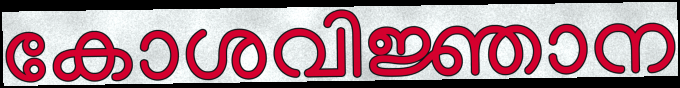
കോശവിജ്ഞാന